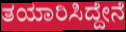
ತಯಾರಿಸಿದ್ದೇನೆ